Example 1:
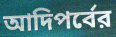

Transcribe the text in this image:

আদিপর্বের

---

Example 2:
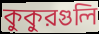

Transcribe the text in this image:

কুকুরগুলি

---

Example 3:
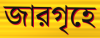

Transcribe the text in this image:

জারগৃহে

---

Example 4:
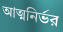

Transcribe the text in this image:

আত্মনির্ভর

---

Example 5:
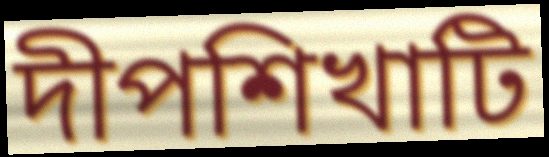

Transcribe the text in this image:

দীপশিখাটি